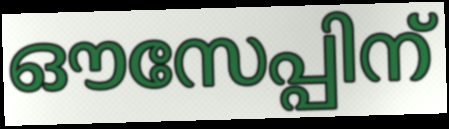
ഔസേപ്പിന്